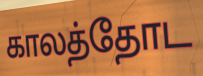
காலத்தோட